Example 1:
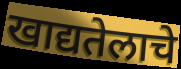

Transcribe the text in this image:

खाद्यतेलाचे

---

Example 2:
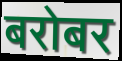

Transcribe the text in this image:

बरोबर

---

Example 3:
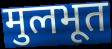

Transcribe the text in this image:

मुलभूत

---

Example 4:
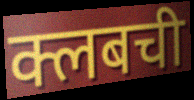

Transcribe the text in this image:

क्लबची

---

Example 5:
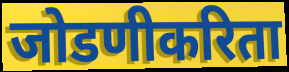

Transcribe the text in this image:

जोडणीकरिता